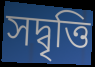
সদ্বৃত্তি